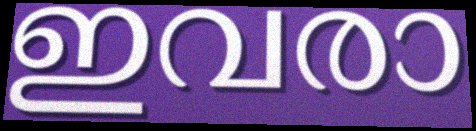
ഇവരാ